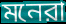
মনেরা